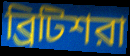
ব্রিটিশরা